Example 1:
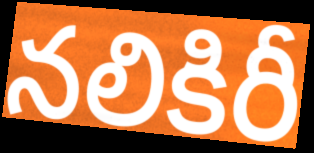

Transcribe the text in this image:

నలికిరీ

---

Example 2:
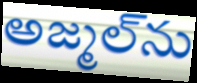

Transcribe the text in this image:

అజ్మల్‌ను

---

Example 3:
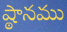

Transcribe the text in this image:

ష్ఠానము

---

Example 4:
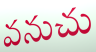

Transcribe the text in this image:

వనుచు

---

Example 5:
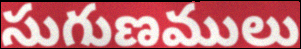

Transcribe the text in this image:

సుగుణములు